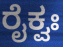
ರೈಕ್ವಃ